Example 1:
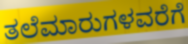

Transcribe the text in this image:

ತಲೆಮಾರುಗಳವರೆಗೆ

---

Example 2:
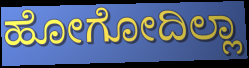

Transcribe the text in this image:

ಹೋಗೋದಿಲ್ಲಾ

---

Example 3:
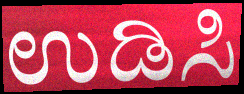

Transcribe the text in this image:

ಉಡಿಸಿ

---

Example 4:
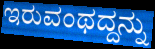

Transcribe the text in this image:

ಇರುವಂಥದ್ದನ್ನು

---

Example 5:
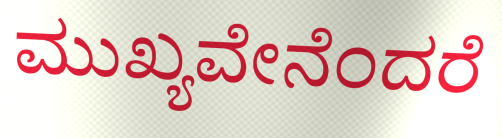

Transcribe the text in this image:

ಮುಖ್ಯವೇನೆಂದರೆ